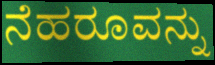
ನೆಹರೂವನ್ನು